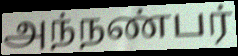
அந்நண்பர்